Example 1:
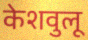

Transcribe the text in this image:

केशवुलू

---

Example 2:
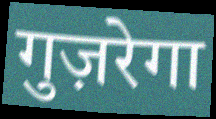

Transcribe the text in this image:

गुज़रेगा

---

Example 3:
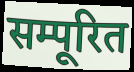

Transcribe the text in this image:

सम्पूरित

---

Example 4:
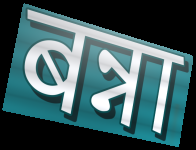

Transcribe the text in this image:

बन्ना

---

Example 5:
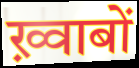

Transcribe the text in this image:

ख़्वाबों